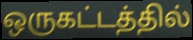
ஒருகட்டத்தில்